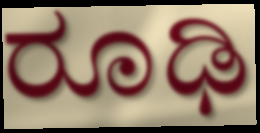
ರೂಢಿ